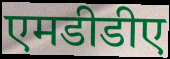
एमडीडीए